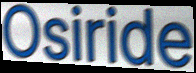
Osiride